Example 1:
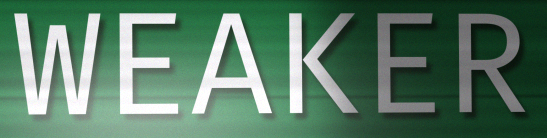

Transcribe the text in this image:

WEAKER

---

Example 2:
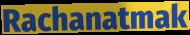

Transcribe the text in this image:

Rachanatmak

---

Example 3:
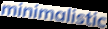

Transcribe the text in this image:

minimalistic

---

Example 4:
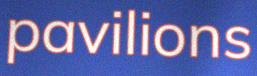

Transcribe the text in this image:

pavilions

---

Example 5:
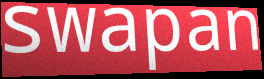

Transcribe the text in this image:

swapan